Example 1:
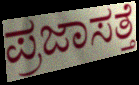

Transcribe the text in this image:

ಪ್ರಜಾಸತ್ತೆ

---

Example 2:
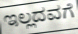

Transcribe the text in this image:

ಇಲ್ಲದವಗೆ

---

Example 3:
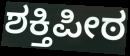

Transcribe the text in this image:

ಶಕ್ತಿಪೀಠ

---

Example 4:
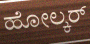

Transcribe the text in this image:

ಹೋಲ್ಕರ್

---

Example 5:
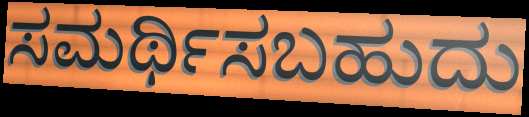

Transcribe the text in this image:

ಸಮರ್ಥಿಸಬಹುದು